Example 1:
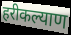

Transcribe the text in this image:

हरीकल्याण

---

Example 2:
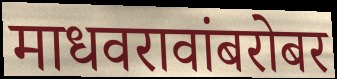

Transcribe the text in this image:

माधवरावांबरोबर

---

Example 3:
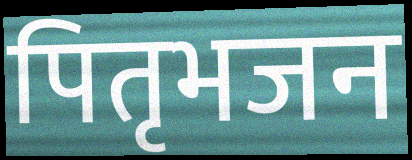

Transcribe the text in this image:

पितृभजन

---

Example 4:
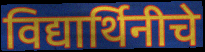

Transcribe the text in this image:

विद्यार्थिनीचे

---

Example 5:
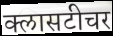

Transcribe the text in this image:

क्लासटीचर